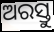
ଅରସ୍ତୁ